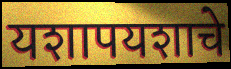
यशापयशाचे